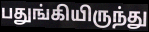
பதுங்கியிருந்து